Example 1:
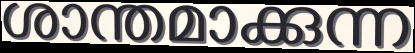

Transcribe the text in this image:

ശാന്തമാക്കുന്ന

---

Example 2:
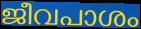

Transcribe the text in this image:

ജീവപാശം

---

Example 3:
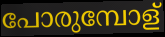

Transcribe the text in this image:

പോരുമ്പോള്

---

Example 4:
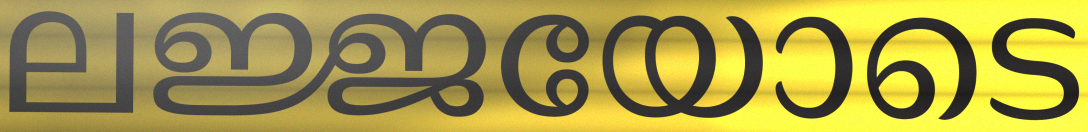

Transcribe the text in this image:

ലജ്ജയോടെ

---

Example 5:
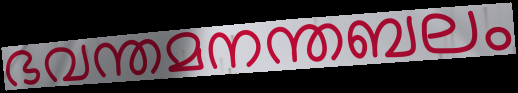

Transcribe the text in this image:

ഭവന്തമനന്തബലം